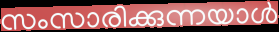
സംസാരിക്കുന്നയാൾ